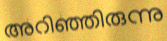
അറിഞ്ഞിരുന്നു